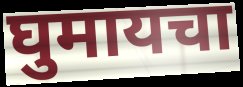
घुमायचा